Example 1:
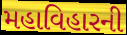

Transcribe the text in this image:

મહાવિહારની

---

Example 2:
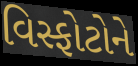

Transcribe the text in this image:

વિસ્ફોટોને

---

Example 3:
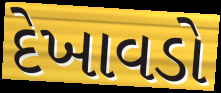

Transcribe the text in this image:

દેખાવડો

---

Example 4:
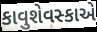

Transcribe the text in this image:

કાવુશેવસ્કાએ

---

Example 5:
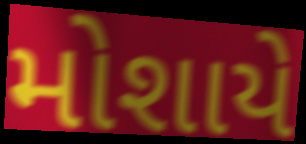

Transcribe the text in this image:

મોશાયે